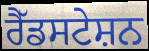
ਰੈੱਡਸਟੇਸ਼ਨ